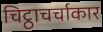
चिट्ठाचर्चाकार